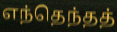
எந்தெந்தத்